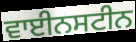
ਵਾਈਨਸਟੀਨ